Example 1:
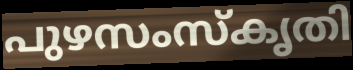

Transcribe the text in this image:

പുഴസംസ്കൃതി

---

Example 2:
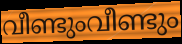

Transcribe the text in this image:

വീണ്ടുംവീണ്ടും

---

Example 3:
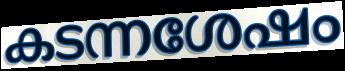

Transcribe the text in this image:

കടന്നശേഷം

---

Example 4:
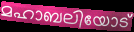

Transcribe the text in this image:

മഹാബലിയോട്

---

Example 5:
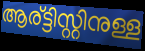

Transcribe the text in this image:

ആര്ട്ടിസ്റ്റിനുള്ള